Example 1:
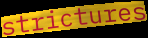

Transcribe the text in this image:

strictures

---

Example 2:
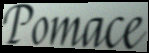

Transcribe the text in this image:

Pomace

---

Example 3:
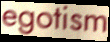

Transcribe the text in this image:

egotism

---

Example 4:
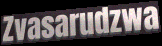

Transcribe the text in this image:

Zvasarudzwa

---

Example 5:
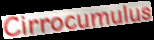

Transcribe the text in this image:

Cirrocumulus